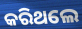
କରିଥଲେ